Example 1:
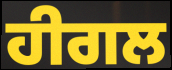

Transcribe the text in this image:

ਹੀਗਲ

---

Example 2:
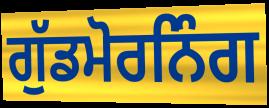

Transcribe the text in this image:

ਗੁੱਡਮੋਰਨਿੰਗ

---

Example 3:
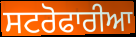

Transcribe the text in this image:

ਸਟਰੋਫਾਰੀਆ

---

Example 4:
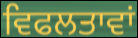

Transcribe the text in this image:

ਵਿਫਲਤਾਵਾਂ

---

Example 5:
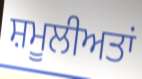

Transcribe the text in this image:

ਸ਼ਮੂਲੀਅਤਾਂ